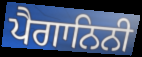
ਪੈਗਾਨਿਨੀ